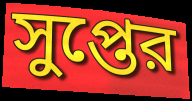
সুপ্তের